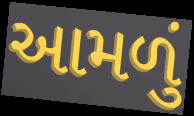
આમળું